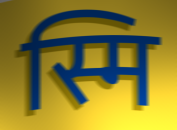
स्मि